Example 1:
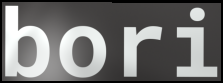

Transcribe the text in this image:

bori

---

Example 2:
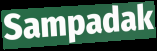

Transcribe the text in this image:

Sampadak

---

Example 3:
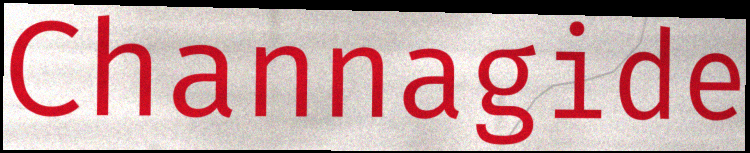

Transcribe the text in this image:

Channagide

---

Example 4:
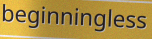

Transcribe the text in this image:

beginningless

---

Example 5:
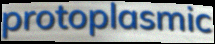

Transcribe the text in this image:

protoplasmic